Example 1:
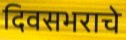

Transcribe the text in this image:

दिवसभराचे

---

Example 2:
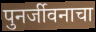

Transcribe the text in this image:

पुनर्जीवनाचा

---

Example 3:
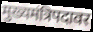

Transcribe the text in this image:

मुख्यमंत्रिपदावर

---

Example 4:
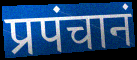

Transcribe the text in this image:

प्रपंचानं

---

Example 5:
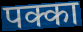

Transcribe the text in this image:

पक्का